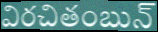
విరచితంబున్